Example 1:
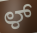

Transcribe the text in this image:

ಳ್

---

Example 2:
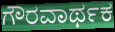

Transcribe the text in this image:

ಗೌರವಾರ್ಥಕ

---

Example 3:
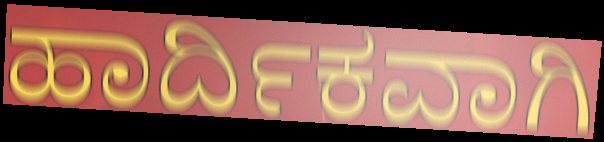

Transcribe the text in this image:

ಹಾರ್ದಿಕವಾಗಿ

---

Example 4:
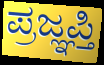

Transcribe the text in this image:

ಪ್ರಜ್ಞಪ್ತಿ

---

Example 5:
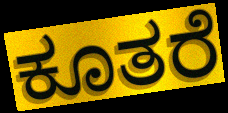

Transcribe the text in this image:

ಕೂತರೆ